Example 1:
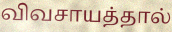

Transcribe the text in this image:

விவசாயத்தால்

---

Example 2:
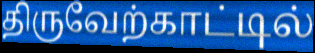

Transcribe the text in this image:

திருவேற்காட்டில்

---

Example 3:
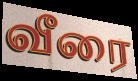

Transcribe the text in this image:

வீரை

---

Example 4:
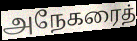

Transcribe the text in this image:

அநேகரைத்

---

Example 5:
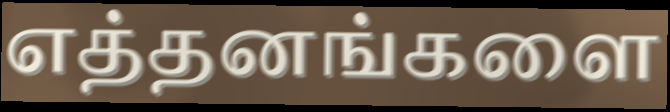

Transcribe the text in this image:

எத்தனங்களை